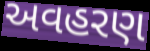
અવહરણ